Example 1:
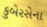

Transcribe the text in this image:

કુબેરસેના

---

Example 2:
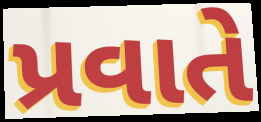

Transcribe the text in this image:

પ્રવાતે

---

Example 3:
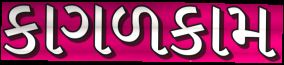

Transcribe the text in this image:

કાગળકામ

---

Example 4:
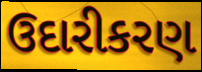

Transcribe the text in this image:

ઉદારીકરણ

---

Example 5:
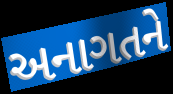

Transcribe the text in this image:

અનાગતને